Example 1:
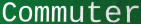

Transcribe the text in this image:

Commuter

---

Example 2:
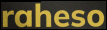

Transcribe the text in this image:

raheso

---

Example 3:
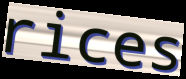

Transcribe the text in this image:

rices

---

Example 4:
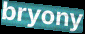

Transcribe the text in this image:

bryony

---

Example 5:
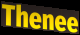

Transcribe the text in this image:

Thenee